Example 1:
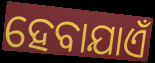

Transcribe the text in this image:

ହେବାଯାଏଁ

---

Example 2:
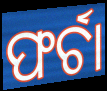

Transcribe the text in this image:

ଫର୍ଚା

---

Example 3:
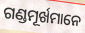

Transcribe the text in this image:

ଗଣ୍ଡମୂର୍ଖମାନେ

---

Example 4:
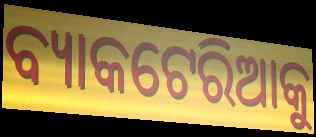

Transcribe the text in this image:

ବ୍ୟାକଟେରିଆକୁ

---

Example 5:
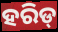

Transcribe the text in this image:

ହରିଡ୍